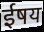
ईषय